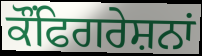
ਕੌਂਫਿਗਰੇਸ਼ਨਾਂ